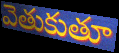
వెతుకుతూ